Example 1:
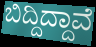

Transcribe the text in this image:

ಬಿದ್ದಿದ್ದಾವೆ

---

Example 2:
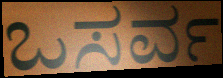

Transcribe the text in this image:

ಒಸರ್ವ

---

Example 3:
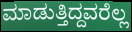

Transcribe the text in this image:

ಮಾಡುತ್ತಿದ್ದವರೆಲ್ಲ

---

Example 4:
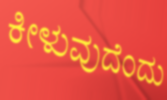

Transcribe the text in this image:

ಕೀಳುವುದೆಂದು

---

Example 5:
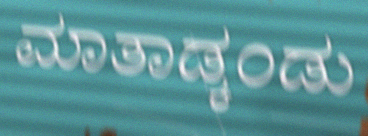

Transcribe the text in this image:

ಮಾತಾಡ್ಕಂಡು